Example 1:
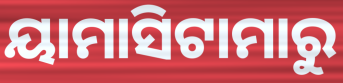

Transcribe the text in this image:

ୟାମାସିଟାମାରୁ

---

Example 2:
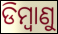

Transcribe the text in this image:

ଡିମ୍ୱାଣୁ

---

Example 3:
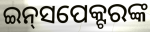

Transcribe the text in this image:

ଇନ୍‍ସପେକ୍ଟରଙ୍କ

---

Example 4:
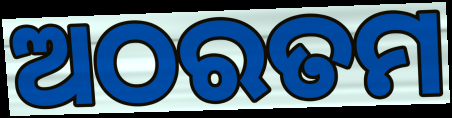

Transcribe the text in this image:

ଅଠରତମ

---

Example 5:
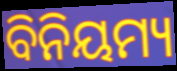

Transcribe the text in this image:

ବିନିୟମ୍ୟ